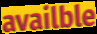
availble